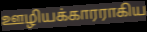
ஊழியக்காரராகிய